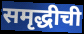
समृद्धीची